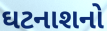
ઘટનાશનો